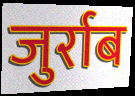
जुर्राब